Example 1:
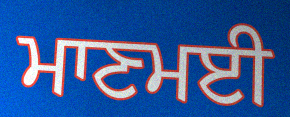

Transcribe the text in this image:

ਮਾਣਮਈ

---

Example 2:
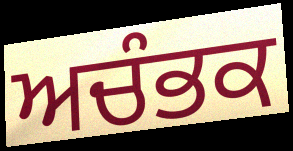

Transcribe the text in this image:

ਅਚੰਭਕ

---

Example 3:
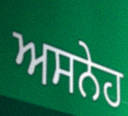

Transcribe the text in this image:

ਅਸਨੇਹ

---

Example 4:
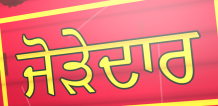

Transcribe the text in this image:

ਜੋੜੇਦਾਰ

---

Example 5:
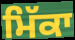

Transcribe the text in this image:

ਮਿੱਕਾ